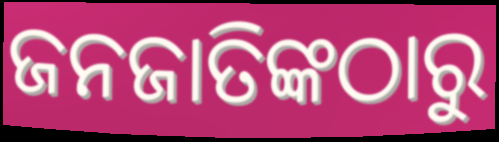
ଜନଜାତିଙ୍କଠାରୁ